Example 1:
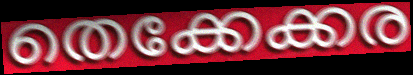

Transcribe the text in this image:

തെക്കേക്കര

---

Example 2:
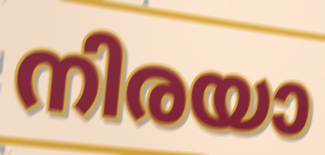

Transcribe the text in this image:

നിരയാ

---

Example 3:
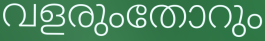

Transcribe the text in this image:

വളരുംതോറും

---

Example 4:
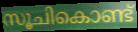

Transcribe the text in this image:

സൂചികൊണ്ട്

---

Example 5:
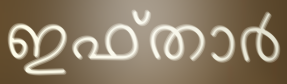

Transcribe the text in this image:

ഇഫ്താർ